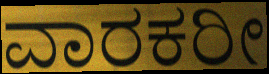
ವಾರಕರೀ